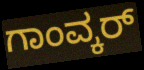
ಗಾಂವ್ಕರ್